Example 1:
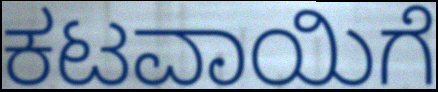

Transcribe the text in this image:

ಕಟವಾಯಿಗೆ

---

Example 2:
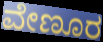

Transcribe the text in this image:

ವೇಣೂರ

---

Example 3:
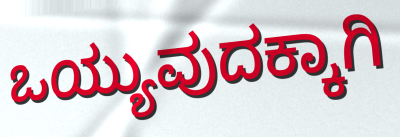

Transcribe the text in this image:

ಒಯ್ಯುವುದಕ್ಕಾಗಿ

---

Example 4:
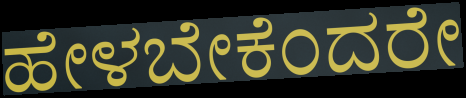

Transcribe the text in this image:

ಹೇಳಬೇಕೆಂದರೇ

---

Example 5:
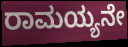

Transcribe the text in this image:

ರಾಮಯ್ಯನೇ